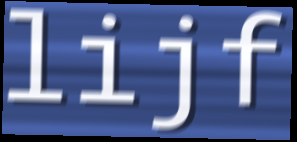
lijf